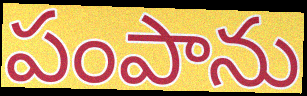
పంపాను